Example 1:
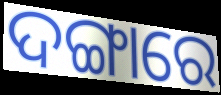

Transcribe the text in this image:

ଦଙ୍ଗାରେ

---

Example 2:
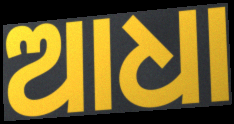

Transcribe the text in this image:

ଆଧା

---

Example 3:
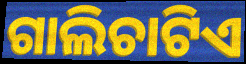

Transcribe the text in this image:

ଗାଲିଚାଟିଏ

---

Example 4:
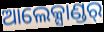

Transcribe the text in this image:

ଆଲେକ୍ସାଣ୍ଡର୍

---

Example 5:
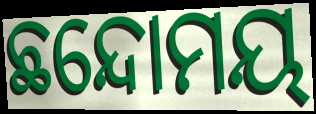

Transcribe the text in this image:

ଛନ୍ଦୋମୟ